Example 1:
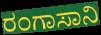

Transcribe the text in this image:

ರಂಗಾಸಾನಿ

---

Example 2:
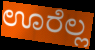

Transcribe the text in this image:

ಊರೆಲ್ಲ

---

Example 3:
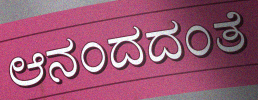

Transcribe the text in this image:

ಆನಂದದಂತೆ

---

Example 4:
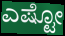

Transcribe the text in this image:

ಎಷ್ಟೋ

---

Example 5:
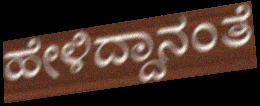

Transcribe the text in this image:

ಹೇಳಿದ್ದಾನಂತೆ